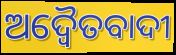
ଅଦ୍ୱୈତବାଦୀ